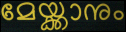
മേയ്ക്കാനും